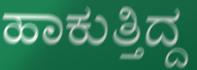
ಹಾಕುತ್ತಿದ್ದ